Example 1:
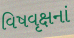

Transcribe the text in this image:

વિષવૃક્ષનાં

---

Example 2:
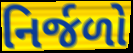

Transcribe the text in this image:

નિર્જળો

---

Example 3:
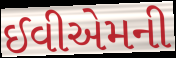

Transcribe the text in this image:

ઈવીએમની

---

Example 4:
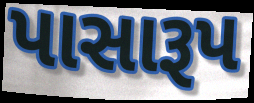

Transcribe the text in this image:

પાસારૂપ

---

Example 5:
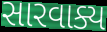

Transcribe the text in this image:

સારવાક્ય